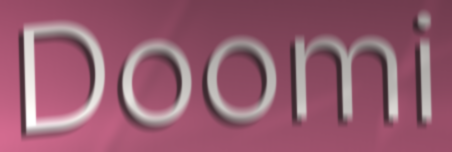
Doomi